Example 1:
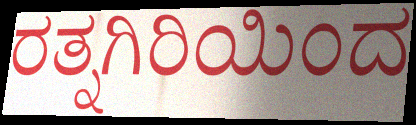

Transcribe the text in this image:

ರತ್ನಗಿರಿಯಿಂದ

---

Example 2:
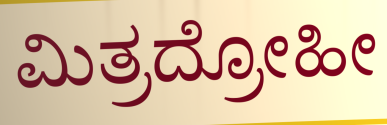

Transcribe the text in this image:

ಮಿತ್ರದ್ರೋಹೀ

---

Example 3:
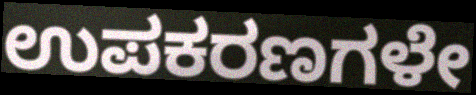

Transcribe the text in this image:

ಉಪಕರಣಗಳೇ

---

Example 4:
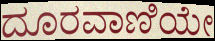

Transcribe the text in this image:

ದೂರವಾಣಿಯೇ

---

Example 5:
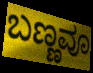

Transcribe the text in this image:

ಬಣ್ಣವೂ